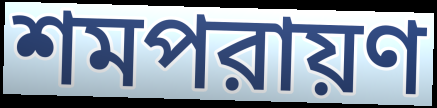
শমপরায়ণ